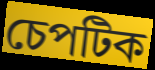
চেপটিক